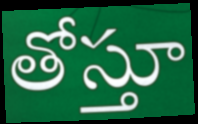
తోస్తూ